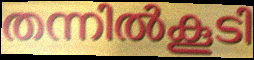
തന്നിൽകൂടി